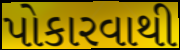
પોકારવાથી